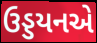
ઉડ્ડયનએ